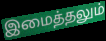
இமைத்தலும்